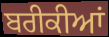
ਬਰੀਕੀਆਂ